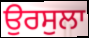
ਉਰਸੁਲਾ